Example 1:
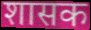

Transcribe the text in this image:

शासक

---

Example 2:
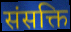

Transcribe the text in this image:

संसक्ति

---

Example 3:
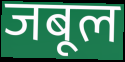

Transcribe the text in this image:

जबूल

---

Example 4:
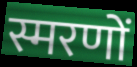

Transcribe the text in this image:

स्मरणों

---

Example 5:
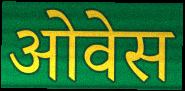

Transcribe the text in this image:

ओवेस